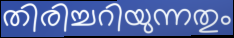
തിരിച്ചറിയുന്നതും